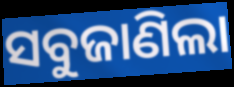
ସବୁଜାଣିଲା